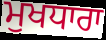
ਮੁਖਧਾਰਾ